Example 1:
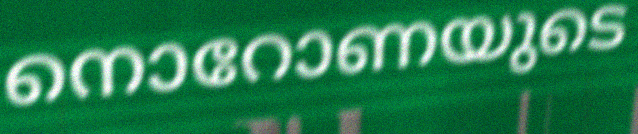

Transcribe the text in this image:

നൊറോണയുടെ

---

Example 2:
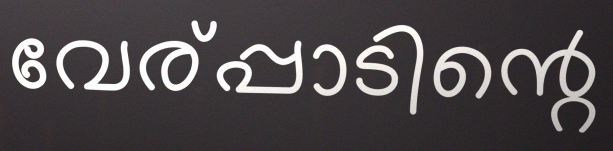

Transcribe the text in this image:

വേര്പ്പാടിന്റെ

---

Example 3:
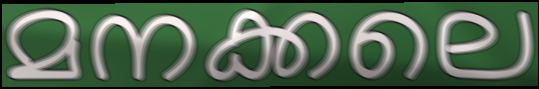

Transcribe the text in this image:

മനക്കലെ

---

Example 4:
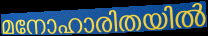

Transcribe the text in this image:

മനോഹാരിതയിൽ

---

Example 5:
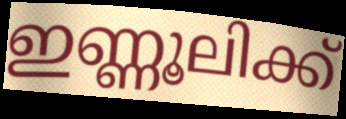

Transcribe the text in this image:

ഇണ്ണൂലിക്ക്